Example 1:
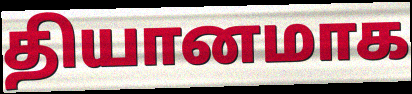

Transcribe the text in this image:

தியானமாக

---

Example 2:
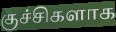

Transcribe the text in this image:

குச்சிகளாக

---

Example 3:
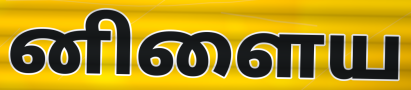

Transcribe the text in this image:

னிளைய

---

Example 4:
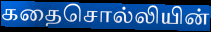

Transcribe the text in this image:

கதைசொல்லியின்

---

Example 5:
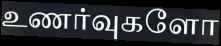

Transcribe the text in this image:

உணர்வுகளோ